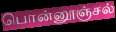
பொன்னூஞ்சல்